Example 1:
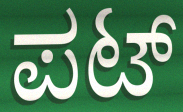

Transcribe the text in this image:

ಪಟ್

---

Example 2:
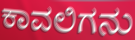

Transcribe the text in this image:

ಕಾವಲಿಗನು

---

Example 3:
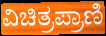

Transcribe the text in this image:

ವಿಚಿತ್ರಪ್ರಾಣಿ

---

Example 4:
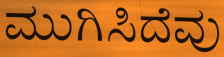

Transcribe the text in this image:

ಮುಗಿಸಿದೆವು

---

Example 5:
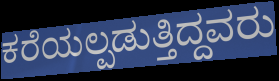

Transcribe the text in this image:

ಕರೆಯಲ್ಪಡುತ್ತಿದ್ದವರು